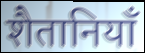
शैतानियाँ